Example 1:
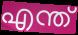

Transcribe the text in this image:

എന്ത്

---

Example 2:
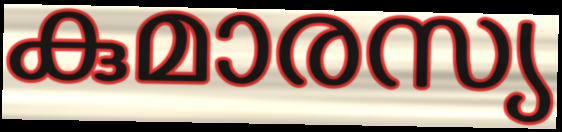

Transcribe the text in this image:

കുമാരസ്യ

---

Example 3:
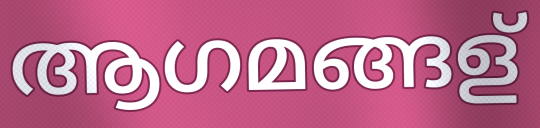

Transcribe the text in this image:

ആഗമങ്ങള്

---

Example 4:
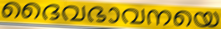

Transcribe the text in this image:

ദൈവഭാവനയെ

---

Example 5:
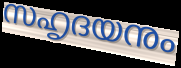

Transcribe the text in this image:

സഹൃദയനും